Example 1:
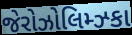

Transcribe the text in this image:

જેરોઝોલિમ્ઝ્કા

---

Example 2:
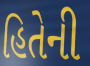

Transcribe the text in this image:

હિતેની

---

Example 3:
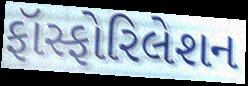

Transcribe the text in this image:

ફૉસ્ફોરિલેશન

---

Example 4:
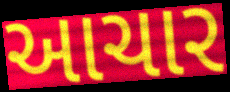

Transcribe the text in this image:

આચાર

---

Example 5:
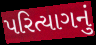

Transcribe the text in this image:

પરિત્યાગનું